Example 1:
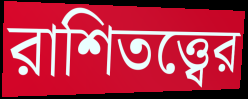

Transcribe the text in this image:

রাশিতত্ত্বের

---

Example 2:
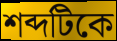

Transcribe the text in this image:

শব্দটিকে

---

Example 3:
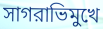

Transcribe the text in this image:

সাগরাভিমুখে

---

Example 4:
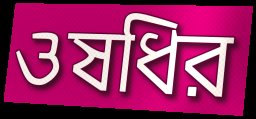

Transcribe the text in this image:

ওষধির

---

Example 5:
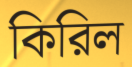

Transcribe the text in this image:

কিরিল